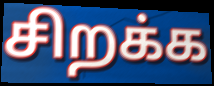
சிறக்க